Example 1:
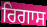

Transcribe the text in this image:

ਰਿਗਾਸ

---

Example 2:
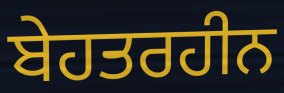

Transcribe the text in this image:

ਬੇਹਤਰਹੀਨ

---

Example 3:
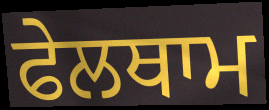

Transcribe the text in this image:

ਫੇਲਥਾਮ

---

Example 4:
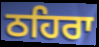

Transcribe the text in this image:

ਠਹਿਰਾ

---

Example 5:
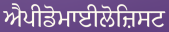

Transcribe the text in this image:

ਐਪੀਡੋਮਾਈਲੋਜ਼ਿਸਟ